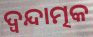
ଦ୍ଵନ୍ଦାତ୍ମକ